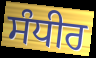
ਸੰਧੀਰ